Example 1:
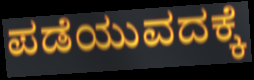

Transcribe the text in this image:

ಪಡೆಯುವದಕ್ಕೆ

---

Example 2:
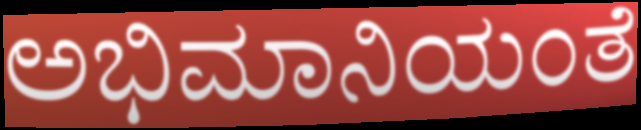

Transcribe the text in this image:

ಅಭಿಮಾನಿಯಂತೆ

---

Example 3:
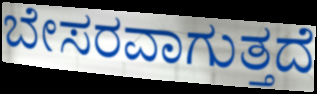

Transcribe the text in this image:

ಬೇಸರವಾಗುತ್ತದೆ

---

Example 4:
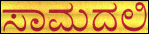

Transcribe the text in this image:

ಸಾಮದಲಿ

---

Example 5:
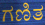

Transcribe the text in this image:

ಗಣಿತ